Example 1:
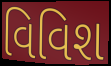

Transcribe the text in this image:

વિવિશ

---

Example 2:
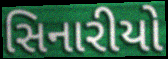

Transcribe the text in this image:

સિનારીયો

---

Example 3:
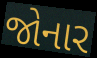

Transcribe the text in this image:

જોનાર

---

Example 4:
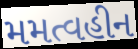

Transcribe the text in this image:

મમત્વહીન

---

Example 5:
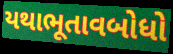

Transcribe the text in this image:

યથાભૂતાવબોધો